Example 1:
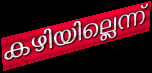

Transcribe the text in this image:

കഴിയില്ലെന്ന്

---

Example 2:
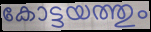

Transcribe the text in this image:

കോട്ടയത്തും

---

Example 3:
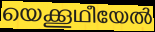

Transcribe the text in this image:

യെക്കൂഥീയേൽ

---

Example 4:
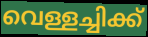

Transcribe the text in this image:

വെള്ളച്ചിക്ക്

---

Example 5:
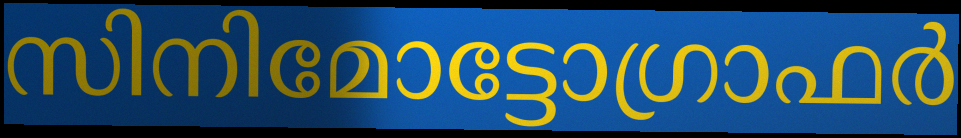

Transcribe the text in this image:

സിനിമോട്ടോഗ്രാഫർ